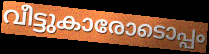
വീട്ടുകാരോടൊപ്പം